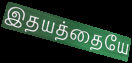
இதயத்தையே